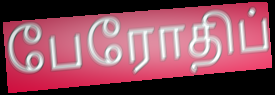
பேரோதிப்